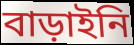
বাড়াইনি